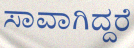
ಸಾವಾಗಿದ್ದರೆ